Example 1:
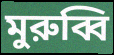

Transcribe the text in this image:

মুরুব্বি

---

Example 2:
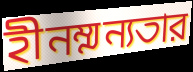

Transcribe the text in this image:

হীনম্মন্যতার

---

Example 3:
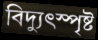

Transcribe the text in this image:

বিদ্যুৎস্পৃষ্ট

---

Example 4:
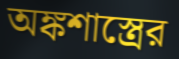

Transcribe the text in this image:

অঙ্কশাস্ত্রের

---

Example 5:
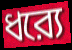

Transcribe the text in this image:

ধর‍্যে